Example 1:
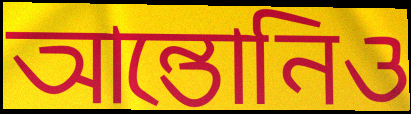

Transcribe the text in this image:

আন্তোনিও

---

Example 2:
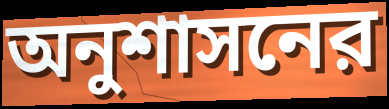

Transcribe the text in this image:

অনুশাসনের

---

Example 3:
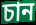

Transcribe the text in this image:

চান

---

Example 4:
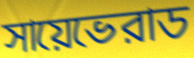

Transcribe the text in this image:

সায়েভেরাড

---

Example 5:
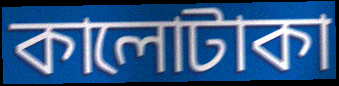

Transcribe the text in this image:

কালোটাকা